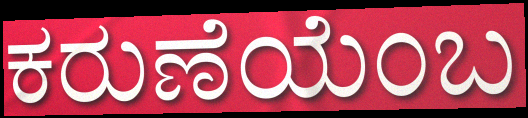
ಕರುಣೆಯೆಂಬ